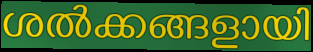
ശൽക്കങ്ങളായി